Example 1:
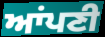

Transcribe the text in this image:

ਆਂਪਣੀ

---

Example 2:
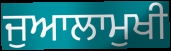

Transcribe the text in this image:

ਜੁਆਲਾਮੁਖੀ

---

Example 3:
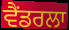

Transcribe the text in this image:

ਵੈਂਡਰਲਾ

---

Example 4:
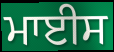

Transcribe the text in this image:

ਮਾਈਸ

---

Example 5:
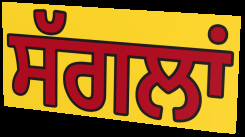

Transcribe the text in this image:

ਸੱਗਲਾਂ